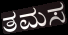
ತಮಸ